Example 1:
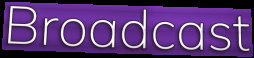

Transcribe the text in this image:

Broadcast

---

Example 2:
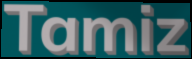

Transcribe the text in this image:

Tamiz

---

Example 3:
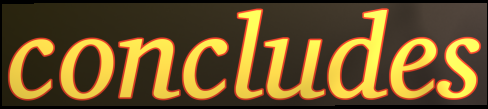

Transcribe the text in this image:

concludes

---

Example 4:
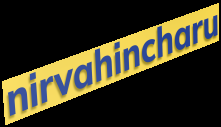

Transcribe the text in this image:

nirvahincharu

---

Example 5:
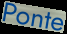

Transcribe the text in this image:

Ponte